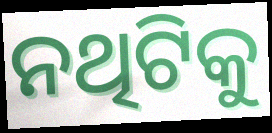
ନଥିଟିକୁ